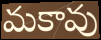
మకావు